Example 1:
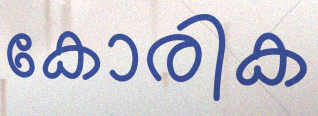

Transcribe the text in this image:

കോരിക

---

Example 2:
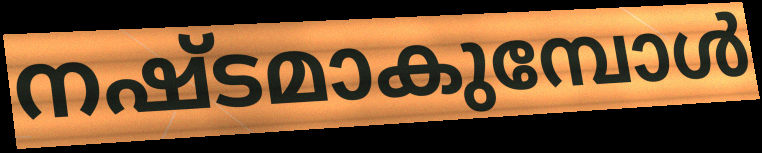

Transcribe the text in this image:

നഷ്ടമാകുമ്പോൾ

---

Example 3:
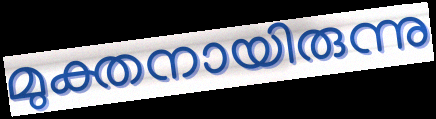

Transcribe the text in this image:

മുക്തനായിരുന്നു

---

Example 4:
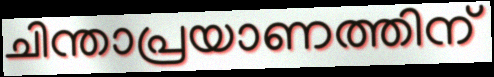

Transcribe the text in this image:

ചിന്താപ്രയാണത്തിന്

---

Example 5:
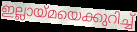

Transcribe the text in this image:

ഇല്ലായ്മയെക്കുറിച്ച്